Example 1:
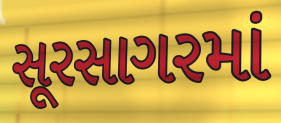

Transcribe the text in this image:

સૂરસાગરમાં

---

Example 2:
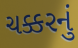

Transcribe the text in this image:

ચક્કરનું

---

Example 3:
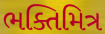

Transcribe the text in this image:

ભક્તિમિત્ર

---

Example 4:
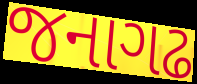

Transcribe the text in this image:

જનાગઢ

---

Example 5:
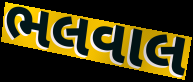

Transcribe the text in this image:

ભલવાલ